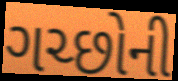
ગચ્છોની